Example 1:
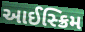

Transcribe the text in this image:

આઈસ્ક્રિમ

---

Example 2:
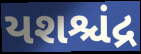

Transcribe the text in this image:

યશશ્ચંદ્ર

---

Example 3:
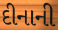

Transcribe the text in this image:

દીનાની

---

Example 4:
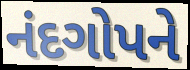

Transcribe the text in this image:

નંદગોપને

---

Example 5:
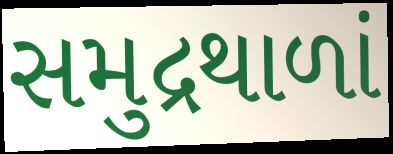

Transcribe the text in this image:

સમુદ્રથાળાં